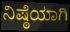
ನಿಷ್ಠೆಯಾಗಿ